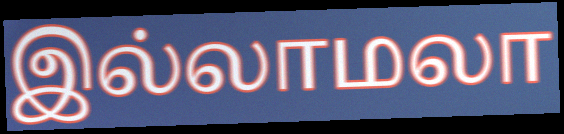
இல்லாமலா